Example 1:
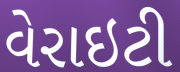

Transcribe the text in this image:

વેરાઇટી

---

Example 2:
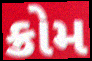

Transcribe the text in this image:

ક્રોમ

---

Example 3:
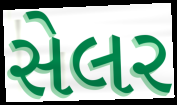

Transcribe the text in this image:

સેલર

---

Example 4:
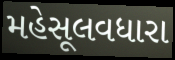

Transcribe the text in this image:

મહેસૂલવધારા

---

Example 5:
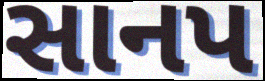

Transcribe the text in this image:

સાનપ